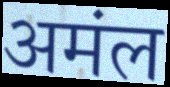
अमंल